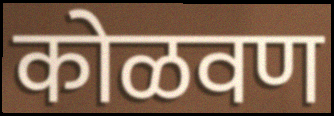
कोळवण